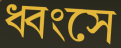
ধ্বংসে